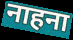
नाहना